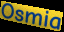
Osmia